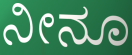
ನೀನೂ